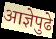
आज्ञेपुढे